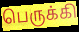
பெருக்கி